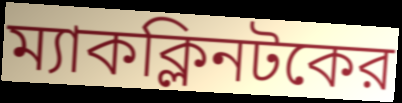
ম্যাকক্লিনটকের